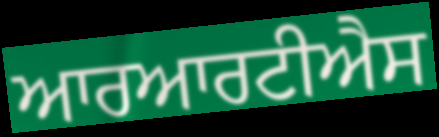
ਆਰਆਰਟੀਐਸ